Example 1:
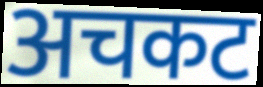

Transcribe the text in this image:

अचकट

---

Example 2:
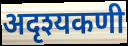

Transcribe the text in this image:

अदृश्यकणी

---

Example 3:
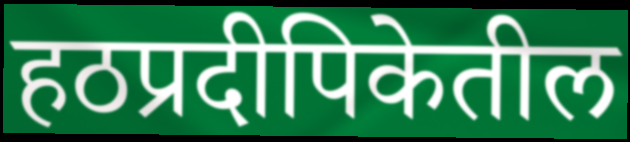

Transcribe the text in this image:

हठप्रदीपिकेतील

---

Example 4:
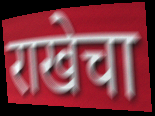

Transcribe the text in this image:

राखेचा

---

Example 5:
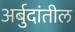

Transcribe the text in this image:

अर्बुदांतील